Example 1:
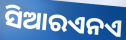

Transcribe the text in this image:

ସିଆରଏନଏ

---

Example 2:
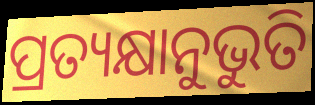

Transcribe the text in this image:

ପ୍ରତ୍ୟକ୍ଷାନୁଭୁତି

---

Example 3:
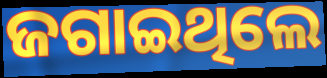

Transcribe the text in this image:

ଜଗାଇଥିଲେ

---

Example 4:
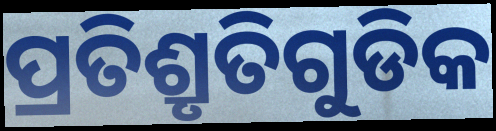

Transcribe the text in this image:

ପ୍ରତିଶ୍ରୃତିଗୁଡିକ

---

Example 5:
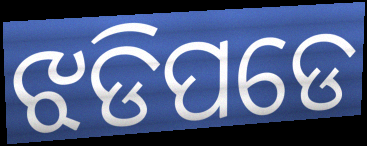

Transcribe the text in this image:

ଝଡିପଡେ